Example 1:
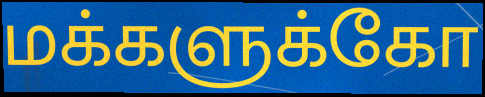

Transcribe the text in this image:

மக்களுக்கோ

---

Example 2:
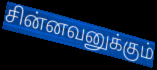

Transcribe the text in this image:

சின்னவனுக்கும்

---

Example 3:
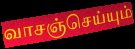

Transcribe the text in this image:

வாசஞ்செய்யும்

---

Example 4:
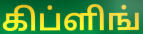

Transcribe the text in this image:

கிப்ளிங்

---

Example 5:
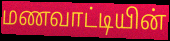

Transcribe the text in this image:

மணவாட்டியின்